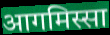
आगमिस्सा